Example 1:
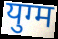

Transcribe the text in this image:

युग्म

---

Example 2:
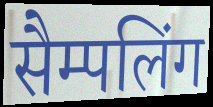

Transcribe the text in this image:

सैम्पलिंग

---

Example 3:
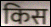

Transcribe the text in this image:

किस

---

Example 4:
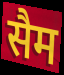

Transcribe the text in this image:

सैम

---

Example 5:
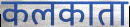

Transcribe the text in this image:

कलकाता